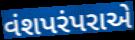
વંશપરંપરાએ